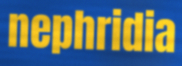
nephridia